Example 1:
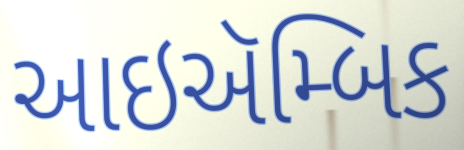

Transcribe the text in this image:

આઇઍમ્બિક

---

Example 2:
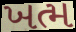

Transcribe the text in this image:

ખત્મ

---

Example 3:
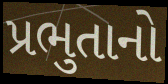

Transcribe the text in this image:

પ્રભુતાનો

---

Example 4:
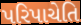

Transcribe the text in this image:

પરિપાચેતિ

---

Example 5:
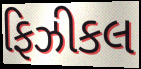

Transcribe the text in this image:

ફિઝીકલ